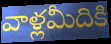
వాళ్లమీదికి